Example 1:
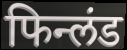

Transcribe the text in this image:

फिन्लंड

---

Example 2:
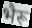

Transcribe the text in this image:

भैरू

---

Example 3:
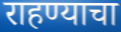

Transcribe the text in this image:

राहण्याचा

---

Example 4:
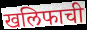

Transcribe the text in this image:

खलिफाची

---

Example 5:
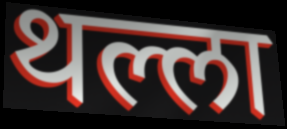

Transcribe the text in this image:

थल्ला